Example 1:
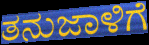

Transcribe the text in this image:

ತನುಜಾಳಿಗೆ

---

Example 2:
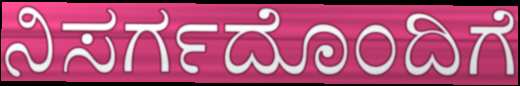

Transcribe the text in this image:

ನಿಸರ್ಗದೊಂದಿಗೆ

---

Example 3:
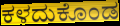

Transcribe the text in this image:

ಕಳದುಕೊಂಡ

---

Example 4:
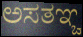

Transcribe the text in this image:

ಅಸತಞ್ಚ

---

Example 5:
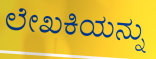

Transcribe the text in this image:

ಲೇಖಕಿಯನ್ನು